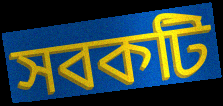
সবকটি